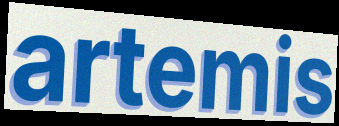
artemis